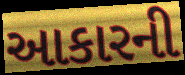
આકારની